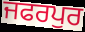
ਜਫਰਪੁਰ